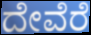
ದೇವೆರೆ